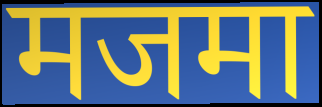
मजमा